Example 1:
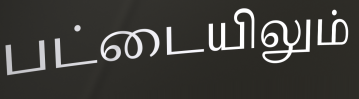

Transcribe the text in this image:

பட்டையிலும்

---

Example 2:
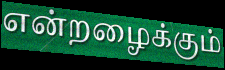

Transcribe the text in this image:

என்றழைக்கும்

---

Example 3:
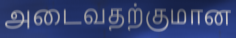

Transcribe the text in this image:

அடைவதற்குமான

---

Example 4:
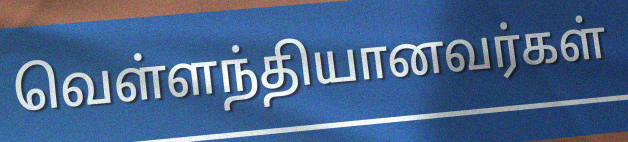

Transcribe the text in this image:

வெள்ளந்தியானவர்கள்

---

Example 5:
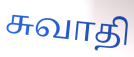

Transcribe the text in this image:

சுவாதி